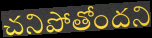
చనిపోతోందని